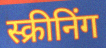
स्क्रीनिंग